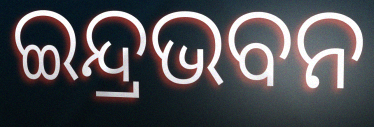
ଇନ୍ଦ୍ରଭବନ